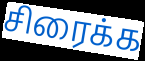
சிரைக்க